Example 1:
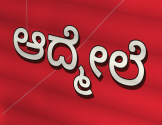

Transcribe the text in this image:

ಆದ್ಮೇಲೆ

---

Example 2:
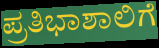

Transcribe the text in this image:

ಪ್ರತಿಭಾಶಾಲಿಗೆ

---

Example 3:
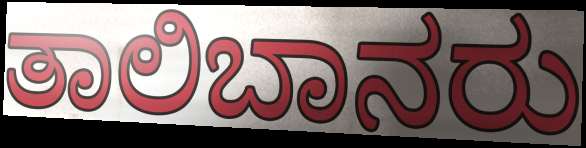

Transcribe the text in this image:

ತಾಲಿಬಾನರು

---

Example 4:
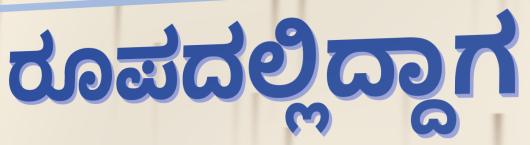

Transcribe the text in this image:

ರೂಪದಲ್ಲಿದ್ದಾಗ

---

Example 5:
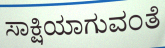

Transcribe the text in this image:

ಸಾಕ್ಷಿಯಾಗುವಂತೆ